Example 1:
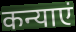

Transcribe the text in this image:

कन्याएं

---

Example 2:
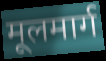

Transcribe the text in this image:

मूलमार्ग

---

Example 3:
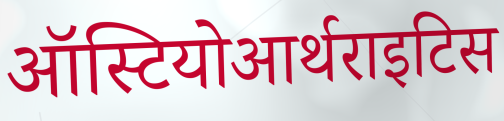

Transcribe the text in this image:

ऑस्टियोआर्थराइटिस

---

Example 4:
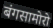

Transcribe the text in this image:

बंगसामोरो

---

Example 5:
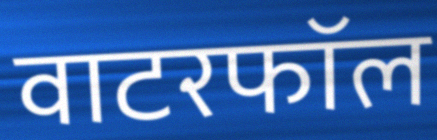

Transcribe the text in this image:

वाटरफॉल